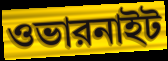
ওভারনাইট